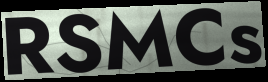
RSMCs